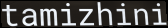
tamizhini